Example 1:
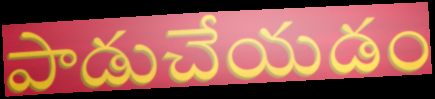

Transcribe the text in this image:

పాడుచేయడం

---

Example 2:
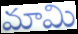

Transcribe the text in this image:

మామి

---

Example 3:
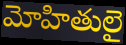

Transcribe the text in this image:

మోహితులై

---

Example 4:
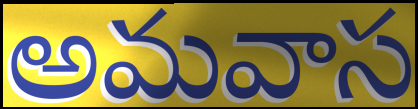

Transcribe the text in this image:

అమవాస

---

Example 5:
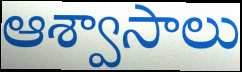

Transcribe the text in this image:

ఆశ్వాసాలు